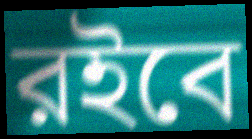
রইবে